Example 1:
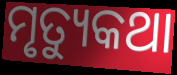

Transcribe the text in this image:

ମୃତ୍ୟୁକଥା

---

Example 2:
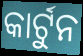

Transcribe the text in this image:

କାର୍ଟୁନ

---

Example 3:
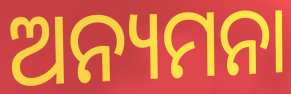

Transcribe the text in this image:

ଅନ୍ୟମନା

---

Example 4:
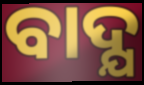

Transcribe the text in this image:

ବାଦ୍ଯ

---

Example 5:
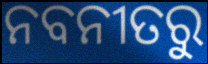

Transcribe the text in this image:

ନବନୀତରୁ